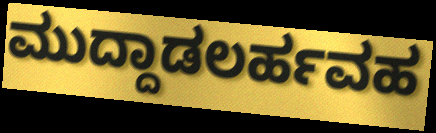
ಮುದ್ದಾಡಲರ್ಹವಹ